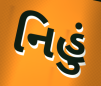
નિહું